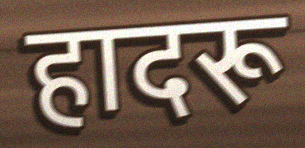
हादरू